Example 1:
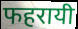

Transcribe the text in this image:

फहरायी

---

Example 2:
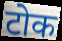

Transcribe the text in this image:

टोक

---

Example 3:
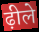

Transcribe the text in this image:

ढ़ीले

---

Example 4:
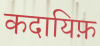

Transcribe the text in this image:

कदायिफ़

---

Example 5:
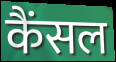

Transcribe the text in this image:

कैंसल